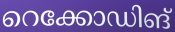
റെക്കോഡിങ്